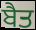
ਬੈਤ